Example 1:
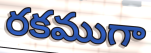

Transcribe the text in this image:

రకముగా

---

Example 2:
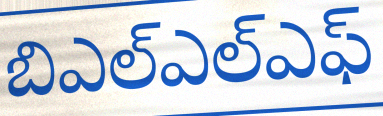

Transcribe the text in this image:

బిఎల్ఎల్ఎఫ్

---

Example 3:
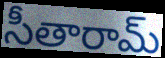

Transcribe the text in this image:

సీతారామ్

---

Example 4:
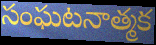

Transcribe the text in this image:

సంఘటనాత్మక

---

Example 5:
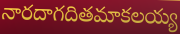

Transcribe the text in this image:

నారదాగదితమాకలయ్య